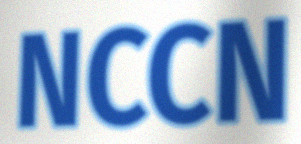
NCCN